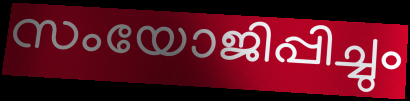
സംയോജിപ്പിച്ചും